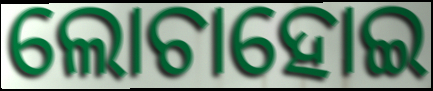
ଲୋଚାହୋଇ